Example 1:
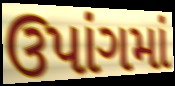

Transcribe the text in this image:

ઉપાંગમાં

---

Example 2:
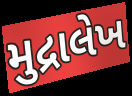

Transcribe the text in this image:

મુદ્રાલેખ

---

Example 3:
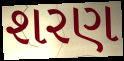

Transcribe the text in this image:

શરણ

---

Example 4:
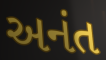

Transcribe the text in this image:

અનંત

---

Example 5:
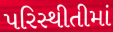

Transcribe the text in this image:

પરિસ્થીતીમાં